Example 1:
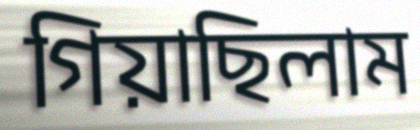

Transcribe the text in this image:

গিয়াছিলাম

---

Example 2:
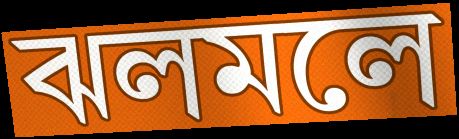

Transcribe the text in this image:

ঝলমলে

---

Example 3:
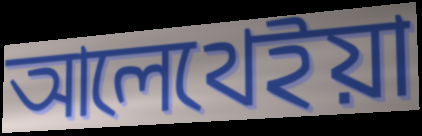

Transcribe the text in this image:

আলেথেইয়া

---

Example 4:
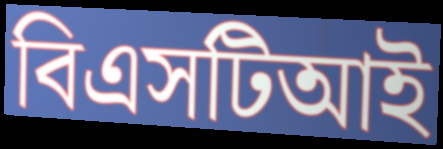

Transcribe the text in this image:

বিএসটিআই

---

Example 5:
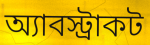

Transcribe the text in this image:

অ্যাবস্ট্রাকট